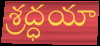
శ్రద్ధయా